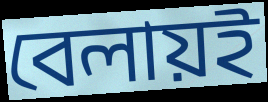
বেলায়ই